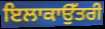
ਇਲਾਕਾਉੱਤਰੀ